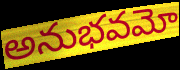
అనుభవమో